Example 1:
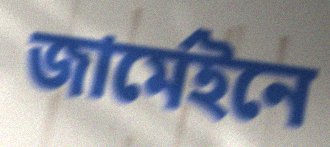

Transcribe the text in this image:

জার্মেইনে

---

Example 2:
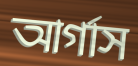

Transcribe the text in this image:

আর্গাস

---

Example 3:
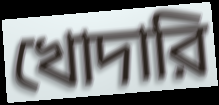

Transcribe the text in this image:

খোদারি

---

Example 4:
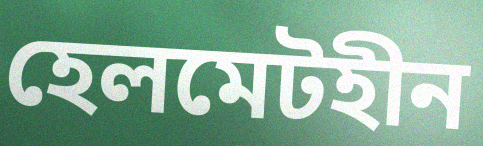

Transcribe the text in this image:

হেলমেটহীন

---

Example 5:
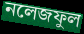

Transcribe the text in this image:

নলেজফুল